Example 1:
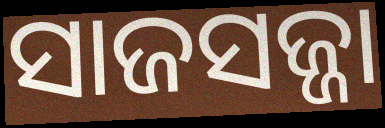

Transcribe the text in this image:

ସାଜସଜ୍ଜା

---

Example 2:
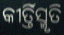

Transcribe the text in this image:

କୀର୍ତ୍ତିସ୍ମୃତି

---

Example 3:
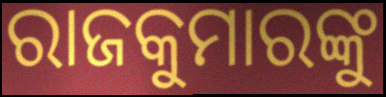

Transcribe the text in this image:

ରାଜକୁମାରଙ୍କୁ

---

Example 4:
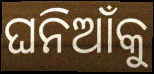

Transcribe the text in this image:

ଘନିଆଁକୁ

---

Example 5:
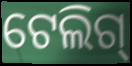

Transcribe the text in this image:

ଟେଲିଗ୍